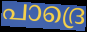
പാദ്രെ